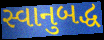
સ્વાનુબદ્ધ